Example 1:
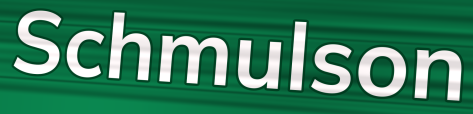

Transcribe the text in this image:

Schmulson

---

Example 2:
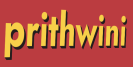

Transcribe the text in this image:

prithwini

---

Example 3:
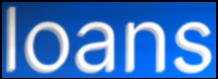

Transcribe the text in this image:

loans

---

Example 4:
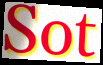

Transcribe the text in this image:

Sot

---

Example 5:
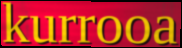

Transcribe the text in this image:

kurrooa